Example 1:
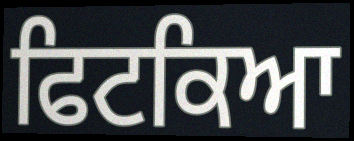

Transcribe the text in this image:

ਫਿਟਕਿਆ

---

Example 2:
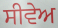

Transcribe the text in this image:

ਸੀਵੇਅ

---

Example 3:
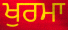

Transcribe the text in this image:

ਖੁਰਮਾ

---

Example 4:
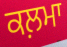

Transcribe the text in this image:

ਕਲ਼ਮਾ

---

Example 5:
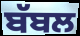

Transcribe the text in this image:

ਬੱਬਲ